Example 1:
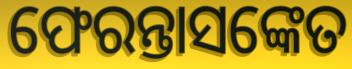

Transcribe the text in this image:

ଫେରନ୍ତାସଙ୍କେତ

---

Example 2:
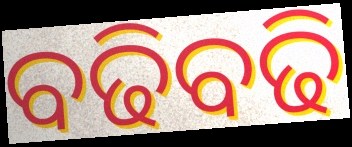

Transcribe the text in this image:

ବଢିବଢି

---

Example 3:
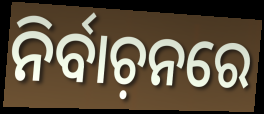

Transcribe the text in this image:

ନିର୍ବାଚ଼ନରେ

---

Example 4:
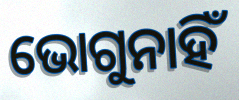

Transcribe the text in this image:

ଭୋଗୁନାହିଁ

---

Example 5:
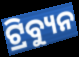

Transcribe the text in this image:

ଟ୍ରିବ୍ୟୁନ